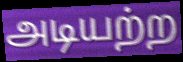
அடியற்ற